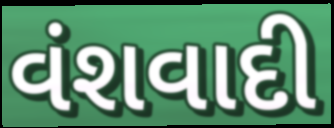
વંશવાદી